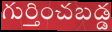
గుర్తించబడ్డ